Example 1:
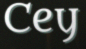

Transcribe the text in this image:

Cey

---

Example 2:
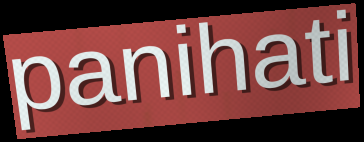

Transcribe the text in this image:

panihati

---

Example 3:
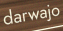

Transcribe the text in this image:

darwajo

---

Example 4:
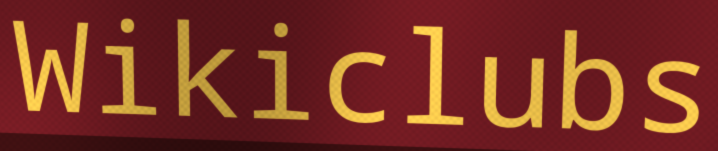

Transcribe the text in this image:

Wikiclubs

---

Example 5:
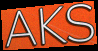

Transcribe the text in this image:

AKS